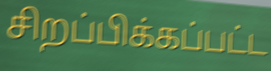
சிறப்பிக்கப்பட்ட